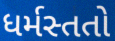
ધર્મસ્તતો